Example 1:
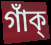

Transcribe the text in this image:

গাঁক্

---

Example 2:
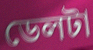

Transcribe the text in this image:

ডেলটা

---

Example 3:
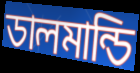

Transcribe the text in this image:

ডালমান্ডি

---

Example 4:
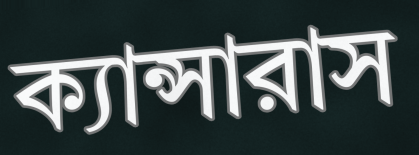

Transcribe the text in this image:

ক্যান্সারাস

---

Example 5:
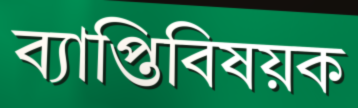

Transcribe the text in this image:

ব্যাপ্তিবিষয়ক